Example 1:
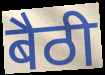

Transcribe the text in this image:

बैठी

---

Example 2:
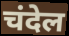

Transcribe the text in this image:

चंदेल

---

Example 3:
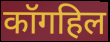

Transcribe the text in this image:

कॉगहिल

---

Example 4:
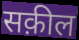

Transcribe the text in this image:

सक़ील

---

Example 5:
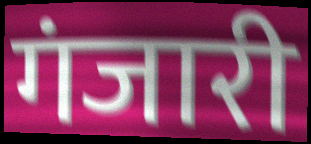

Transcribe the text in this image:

गंजारी